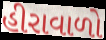
હીરાવાળો